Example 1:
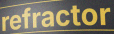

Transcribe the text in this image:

refractor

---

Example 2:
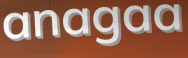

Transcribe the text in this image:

anagaa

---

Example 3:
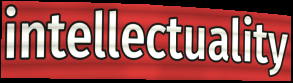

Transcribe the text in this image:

intellectuality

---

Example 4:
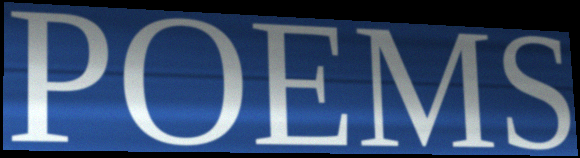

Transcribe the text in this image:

POEMS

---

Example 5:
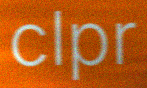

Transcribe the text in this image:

clpr